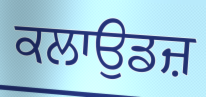
ਕਲਾਉਡਜ਼